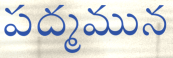
పద్మమున